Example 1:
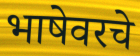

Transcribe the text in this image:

भाषेवरचे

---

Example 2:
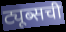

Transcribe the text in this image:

ट्यूब्सची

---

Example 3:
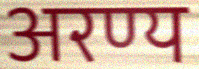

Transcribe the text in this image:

अरण्य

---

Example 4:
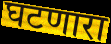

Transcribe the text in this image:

घटणारा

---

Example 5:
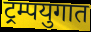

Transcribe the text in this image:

ट्रम्पयुगात